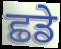
ਛਡੇ